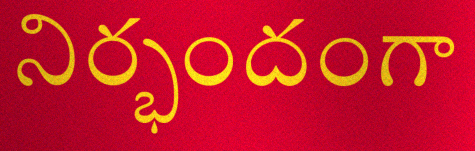
నిర్భందంగా